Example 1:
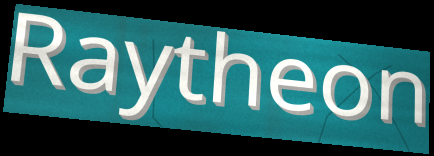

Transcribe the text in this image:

Raytheon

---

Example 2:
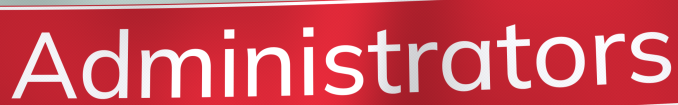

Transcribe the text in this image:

Administrators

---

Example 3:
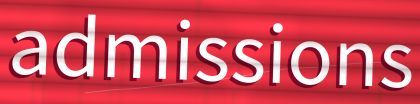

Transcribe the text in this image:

admissions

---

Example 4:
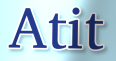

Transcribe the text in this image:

Atit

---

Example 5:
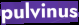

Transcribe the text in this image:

pulvinus